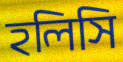
হলিসি